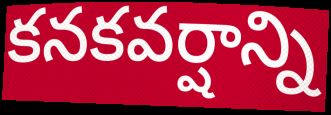
కనకవర్షాన్ని